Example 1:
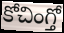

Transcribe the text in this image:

కోచింగ్తో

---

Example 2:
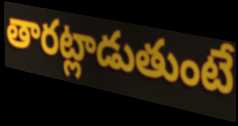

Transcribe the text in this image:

తారట్లాడుతుంటే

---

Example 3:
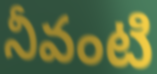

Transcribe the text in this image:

నీవంటి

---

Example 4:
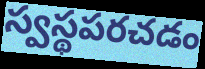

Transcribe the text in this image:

స్వస్థపరచడం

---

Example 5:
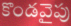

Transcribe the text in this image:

కొండవైపు